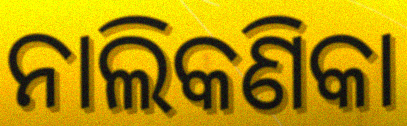
ନାଲିକଣିକା